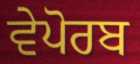
ਵੇਪੋਰਬ